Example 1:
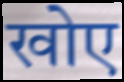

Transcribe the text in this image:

खोए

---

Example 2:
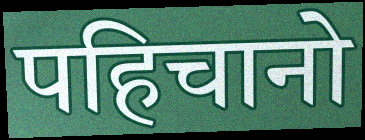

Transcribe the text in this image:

पहिचानो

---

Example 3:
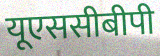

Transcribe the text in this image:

यूएससीबीपी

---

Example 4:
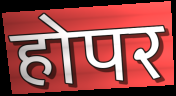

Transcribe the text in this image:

होपर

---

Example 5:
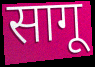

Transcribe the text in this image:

सागू